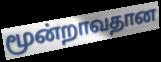
மூன்றாவதான